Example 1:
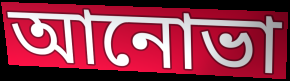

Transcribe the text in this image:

আনোভা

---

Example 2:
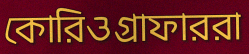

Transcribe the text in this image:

কোরিওগ্রাফাররা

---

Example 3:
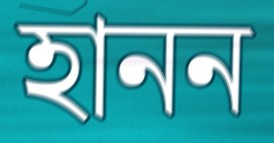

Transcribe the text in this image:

হানন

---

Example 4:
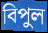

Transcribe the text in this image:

বিপুল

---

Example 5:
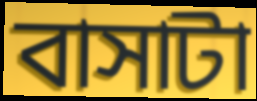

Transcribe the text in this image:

বাসাটা